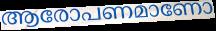
ആരോപണമാണോ